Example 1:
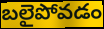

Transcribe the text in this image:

బలైపోవడం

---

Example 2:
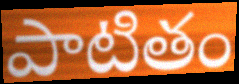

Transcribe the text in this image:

పాటితం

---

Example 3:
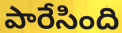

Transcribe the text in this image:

పారేసింది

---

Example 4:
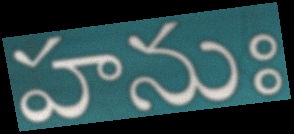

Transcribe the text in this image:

హనుః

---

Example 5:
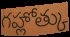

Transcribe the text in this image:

గహ్లోత్కు